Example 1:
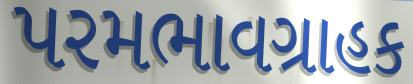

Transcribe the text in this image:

પરમભાવગ્રાહક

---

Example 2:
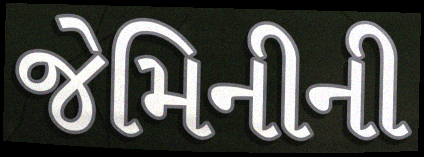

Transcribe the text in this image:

જેમિનીની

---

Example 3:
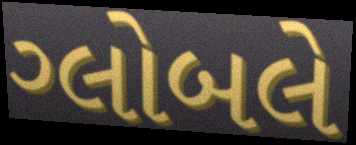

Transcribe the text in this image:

ગ્લોબલે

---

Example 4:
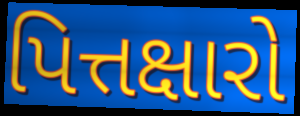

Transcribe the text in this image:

પિત્તક્ષારો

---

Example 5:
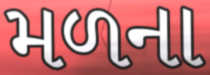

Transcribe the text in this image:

મળના